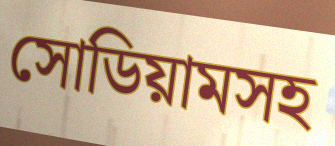
সোডিয়ামসহ